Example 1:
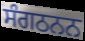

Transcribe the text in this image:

ਸੰਗਠਨਨ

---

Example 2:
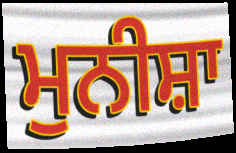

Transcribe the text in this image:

ਮੁਨੀਸ਼ਾ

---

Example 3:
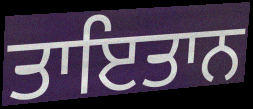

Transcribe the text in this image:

ਤਾਇਤਾਨ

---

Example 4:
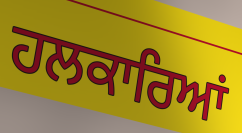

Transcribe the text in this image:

ਹਲਕਾਰਿਆਂ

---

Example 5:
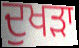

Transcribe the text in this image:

ਦੁਖੜਾ